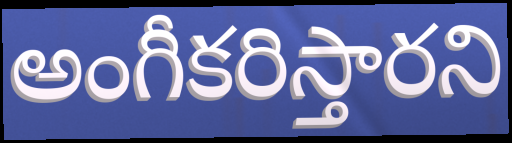
అంగీకరిస్తారని